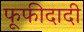
फूफीदादी